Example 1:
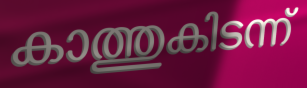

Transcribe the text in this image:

കാത്തുകിടന്ന്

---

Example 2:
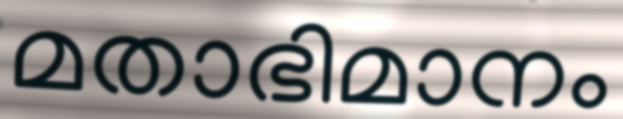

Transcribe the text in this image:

മതാഭിമാനം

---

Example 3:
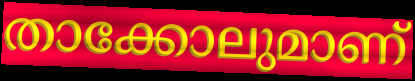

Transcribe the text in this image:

താക്കോലുമാണ്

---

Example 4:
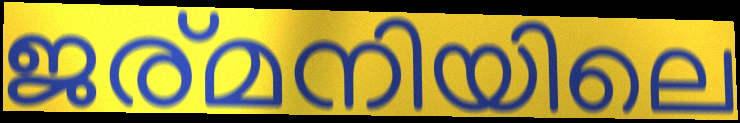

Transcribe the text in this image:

ജര്മനിയിലെ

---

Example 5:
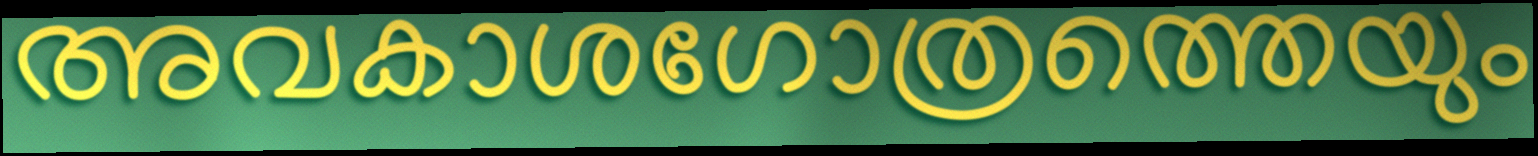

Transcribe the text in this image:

അവകാശഗോത്രത്തെയും